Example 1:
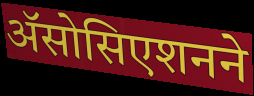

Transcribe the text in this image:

ॲसोसिएशनने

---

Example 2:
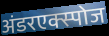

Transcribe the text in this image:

अंडरएक्स्पोज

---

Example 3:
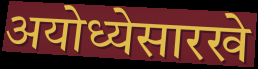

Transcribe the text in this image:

अयोध्येसारखे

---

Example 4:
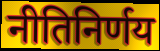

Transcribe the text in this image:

नीतिनिर्णय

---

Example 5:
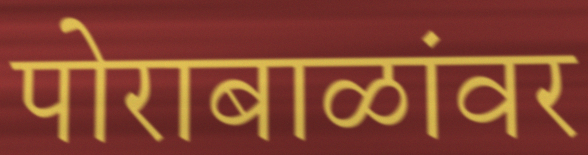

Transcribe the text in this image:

पोराबाळांवर